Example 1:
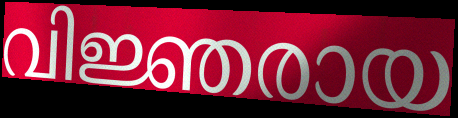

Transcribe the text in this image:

വിജ്ഞരായ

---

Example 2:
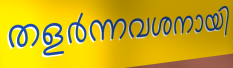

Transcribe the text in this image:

തളർന്നവശനായി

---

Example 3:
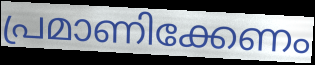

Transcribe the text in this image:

പ്രമാണിക്കേണം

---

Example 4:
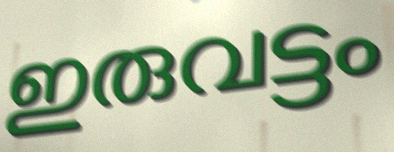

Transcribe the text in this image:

ഇരുവട്ടം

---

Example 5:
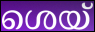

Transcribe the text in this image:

ശെയ്